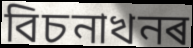
বিচনাখনৰ